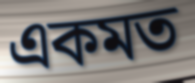
একমত